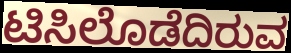
ಟಿಸಿಲೊಡೆದಿರುವ